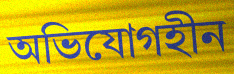
অভিযোগহীন